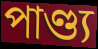
পাণ্ড্য